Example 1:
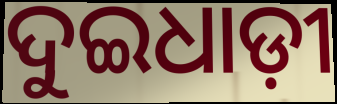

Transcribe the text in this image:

ଦୁଇଧାଡ଼ୀ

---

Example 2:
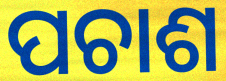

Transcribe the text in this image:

ପଚାଶ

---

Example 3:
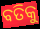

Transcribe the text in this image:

ବତିକୁ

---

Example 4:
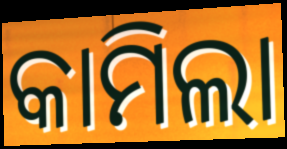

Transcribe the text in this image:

କାମିଲା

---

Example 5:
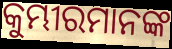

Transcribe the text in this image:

କୁମ୍ଭୀରମାନଙ୍କ